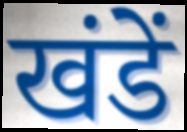
खंडें